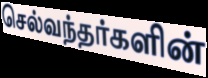
செல்வந்தர்களின்